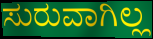
ಸುರುವಾಗಿಲ್ಲ